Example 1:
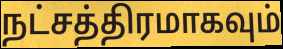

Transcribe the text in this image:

நட்சத்திரமாகவும்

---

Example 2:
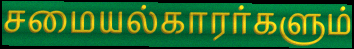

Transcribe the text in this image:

சமையல்காரர்களும்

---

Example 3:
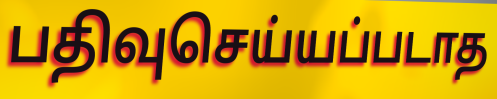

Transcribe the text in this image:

பதிவுசெய்யப்படாத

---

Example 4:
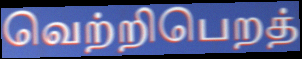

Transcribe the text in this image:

வெற்றிபெறத்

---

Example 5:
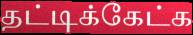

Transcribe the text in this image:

தட்டிக்கேட்க